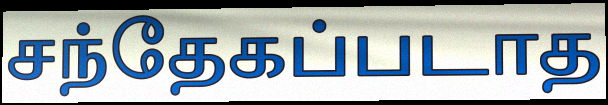
சந்தேகப்படாத